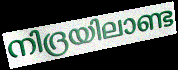
നിദ്രയിലാണ്ട